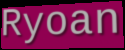
Ryoan